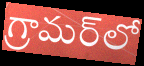
గ్రామర్‌లో